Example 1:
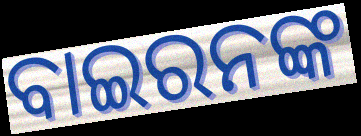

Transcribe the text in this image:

ବାଇରନଙ୍କ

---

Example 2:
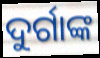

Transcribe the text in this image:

ଦୁର୍ଗାଙ୍କ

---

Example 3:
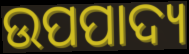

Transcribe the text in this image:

ଉପପାଦ୍ୟ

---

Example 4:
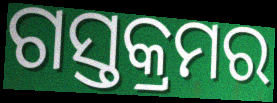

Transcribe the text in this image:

ଗସ୍ତକ୍ରମର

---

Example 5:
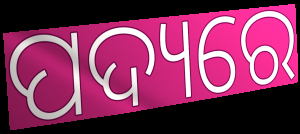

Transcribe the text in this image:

ପଦ୍ୟରେ